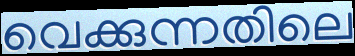
വെക്കുന്നതിലെ